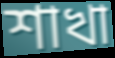
শাখা